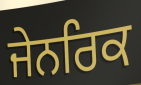
ਜੇਨਰਿਕ